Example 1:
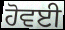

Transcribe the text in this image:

ਹੋਵਈ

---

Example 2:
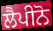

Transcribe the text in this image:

ਲੈਪੀਨੋ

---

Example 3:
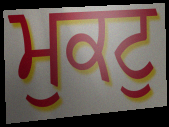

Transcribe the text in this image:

ਮੁਕਟੁ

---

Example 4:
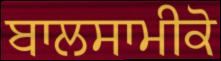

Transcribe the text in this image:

ਬਾਲਸਾਮੀਕੋ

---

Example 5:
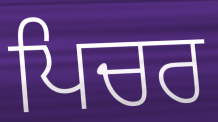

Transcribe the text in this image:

ਪਿਚਰ